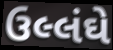
ઉલ્લંઘે